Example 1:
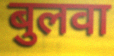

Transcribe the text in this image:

बुलवा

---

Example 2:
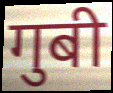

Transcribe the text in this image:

गुबी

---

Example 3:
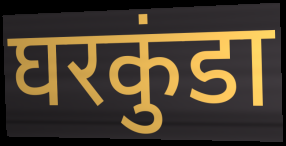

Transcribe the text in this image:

घरकुंडा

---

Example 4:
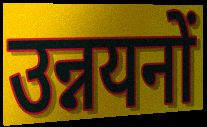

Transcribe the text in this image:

उन्नयनों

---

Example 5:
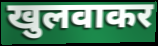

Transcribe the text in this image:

खुलवाकर